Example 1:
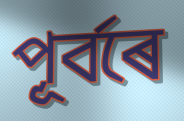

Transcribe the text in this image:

পূৰ্বৰে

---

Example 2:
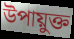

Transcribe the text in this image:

উপায়ুক্ত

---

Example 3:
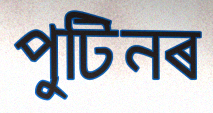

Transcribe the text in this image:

পুটিনৰ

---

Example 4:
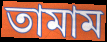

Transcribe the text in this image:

তামাম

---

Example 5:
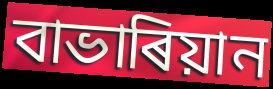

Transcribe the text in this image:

বাভাৰিয়ান